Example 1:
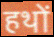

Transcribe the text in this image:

हथों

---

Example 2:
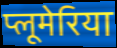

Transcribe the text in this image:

प्लूमेरिया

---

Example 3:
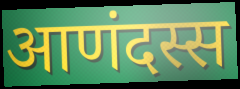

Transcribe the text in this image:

आणंदस्स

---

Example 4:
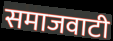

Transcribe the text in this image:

समाजवाटी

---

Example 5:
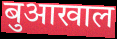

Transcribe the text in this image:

बुआखाल